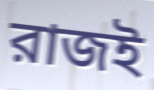
রাজই